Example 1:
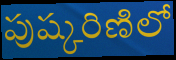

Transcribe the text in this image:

పుష్కరిణిలో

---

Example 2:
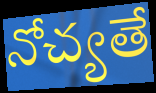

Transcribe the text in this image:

నోచ్యతే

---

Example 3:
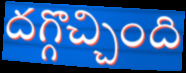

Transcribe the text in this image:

దగ్గొచ్చింది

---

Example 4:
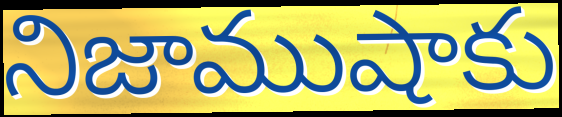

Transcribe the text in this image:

నిజాముషాకు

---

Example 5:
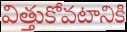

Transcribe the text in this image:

విత్తుకోవటానికి